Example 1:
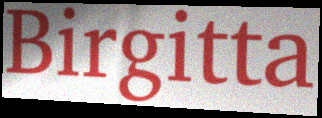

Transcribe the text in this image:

Birgitta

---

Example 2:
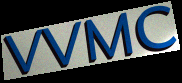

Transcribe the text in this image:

VVMC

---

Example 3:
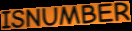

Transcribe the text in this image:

ISNUMBER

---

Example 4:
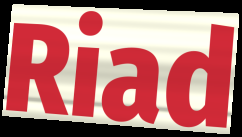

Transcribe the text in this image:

Riad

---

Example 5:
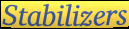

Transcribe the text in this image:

Stabilizers